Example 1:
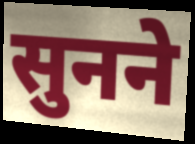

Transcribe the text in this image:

सुनने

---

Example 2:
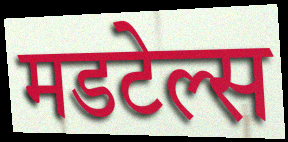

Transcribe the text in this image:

मडटेल्स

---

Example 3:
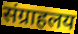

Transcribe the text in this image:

संग्राहलय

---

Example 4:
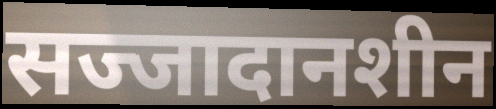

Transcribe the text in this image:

सज्जादानशीन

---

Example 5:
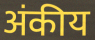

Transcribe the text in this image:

अंकीय